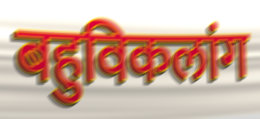
बहुविकलांग